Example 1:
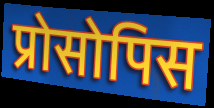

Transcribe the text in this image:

प्रोसोपिस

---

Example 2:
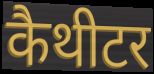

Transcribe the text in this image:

कैथीटर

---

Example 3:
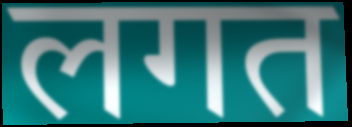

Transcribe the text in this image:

लगत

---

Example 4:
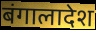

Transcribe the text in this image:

बंगालादेश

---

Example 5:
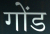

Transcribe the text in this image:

गोंड